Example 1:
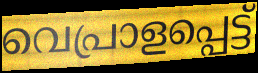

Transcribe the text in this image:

വെപ്രാളപ്പെട്ട്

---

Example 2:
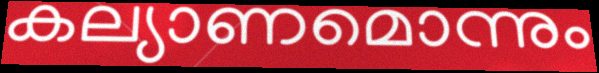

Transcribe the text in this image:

കല്യാണമൊന്നും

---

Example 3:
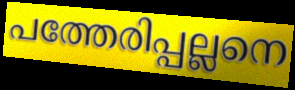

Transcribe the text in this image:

പത്തേരിപ്പല്ലനെ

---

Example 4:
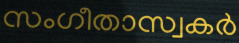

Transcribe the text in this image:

സംഗീതാസ്വകർ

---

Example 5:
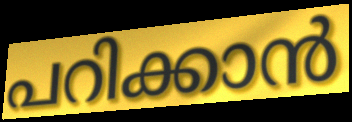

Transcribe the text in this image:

പറിക്കാൻ